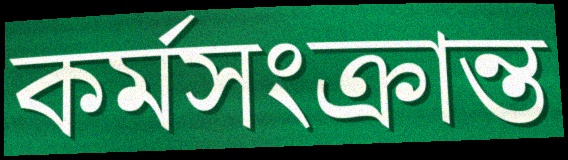
কর্মসংক্রান্ত